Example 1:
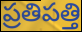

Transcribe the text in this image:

ప్రతిపత్తి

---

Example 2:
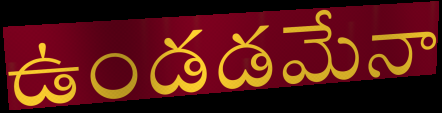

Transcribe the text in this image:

ఉండడమేనా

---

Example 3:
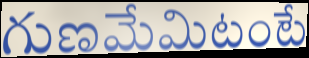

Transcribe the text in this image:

గుణమేమిటంటే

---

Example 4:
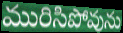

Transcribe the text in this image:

మురిసిపోవును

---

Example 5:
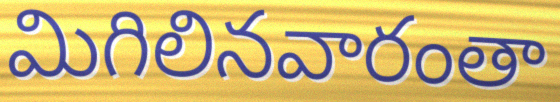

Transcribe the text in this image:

మిగిలినవారంతా